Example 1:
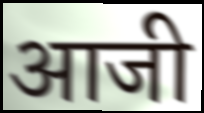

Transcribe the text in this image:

आजी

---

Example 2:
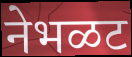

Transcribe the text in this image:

नेभळट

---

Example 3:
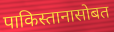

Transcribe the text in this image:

पाकिस्तानासोबत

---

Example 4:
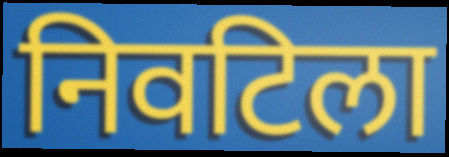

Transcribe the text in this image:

निवटिला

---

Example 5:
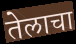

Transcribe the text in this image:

तेलाचा